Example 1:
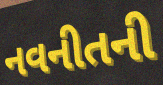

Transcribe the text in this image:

નવનીતની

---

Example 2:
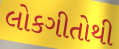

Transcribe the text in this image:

લોકગીતોથી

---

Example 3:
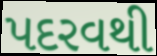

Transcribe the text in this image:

પદરવથી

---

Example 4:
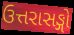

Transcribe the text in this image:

ઉત્તરાસઙ્ગો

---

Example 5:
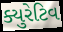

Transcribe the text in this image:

ક્યુરેટિવ